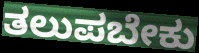
ತಲುಪಬೇಕು